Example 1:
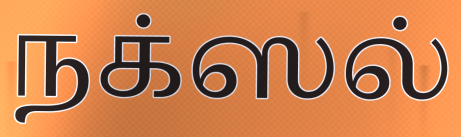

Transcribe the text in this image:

நக்ஸல்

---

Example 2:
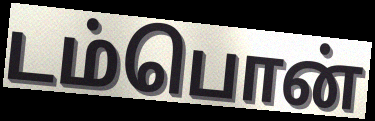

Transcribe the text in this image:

டம்பொன்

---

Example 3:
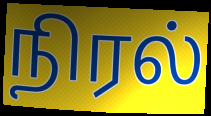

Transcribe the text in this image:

நிரல்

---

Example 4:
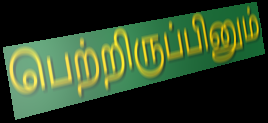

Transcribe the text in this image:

பெற்றிருப்பினும்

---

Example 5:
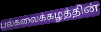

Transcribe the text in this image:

பல்கலைக்கழத்தின்